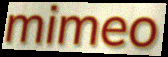
mimeo